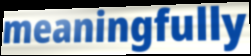
meaningfully